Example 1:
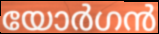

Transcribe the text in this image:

യോർഗൻ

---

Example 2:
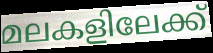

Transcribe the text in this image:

മലകളിലേക്ക്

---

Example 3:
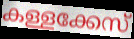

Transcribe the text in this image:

കള്ളക്കേസ്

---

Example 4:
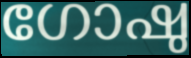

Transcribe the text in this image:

ഗോഷു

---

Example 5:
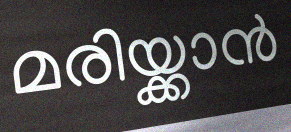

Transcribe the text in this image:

മരിയ്ക്കാൻ